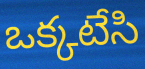
ఒక్కటేసి